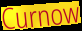
Curnow